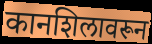
कानशिलावरून